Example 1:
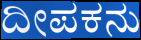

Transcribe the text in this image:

ದೀಪಕನು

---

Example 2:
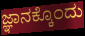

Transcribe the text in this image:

ಜ್ಞಾನಕ್ಕೊಂದು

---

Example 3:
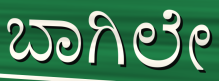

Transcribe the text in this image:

ಬಾಗಿಲೇ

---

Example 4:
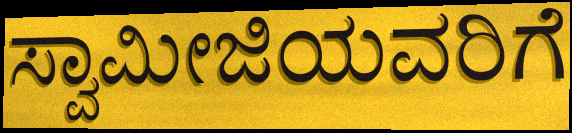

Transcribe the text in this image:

ಸ್ವಾಮೀಜಿಯವರಿಗೆ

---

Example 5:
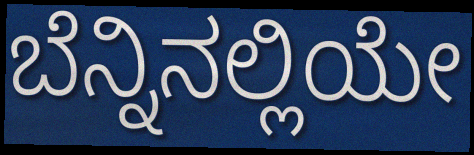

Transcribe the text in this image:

ಬೆನ್ನಿನಲ್ಲಿಯೇ